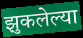
झुकलेल्या